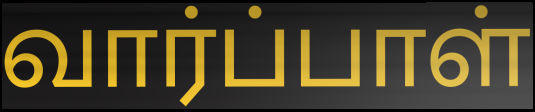
வார்ப்பாள்